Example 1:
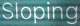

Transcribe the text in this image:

Sloping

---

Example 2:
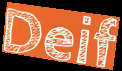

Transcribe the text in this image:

Deif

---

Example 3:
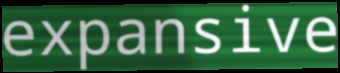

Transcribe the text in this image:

expansive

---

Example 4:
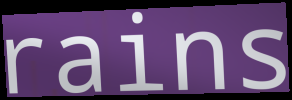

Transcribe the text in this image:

rains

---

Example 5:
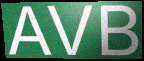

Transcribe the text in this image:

AVB